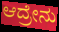
ಆದ್ರೇನು